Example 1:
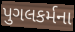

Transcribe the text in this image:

પુગલકર્મના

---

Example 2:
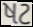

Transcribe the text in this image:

ષટ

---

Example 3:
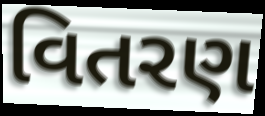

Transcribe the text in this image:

વિતરણ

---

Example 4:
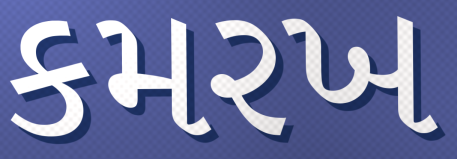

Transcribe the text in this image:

કમરખ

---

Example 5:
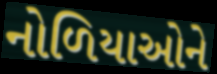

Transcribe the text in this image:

નોળિયાઓને